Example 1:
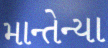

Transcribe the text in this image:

માન્તેન્યા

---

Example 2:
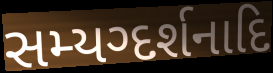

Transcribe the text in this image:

સમ્યગ્દર્શનાદિ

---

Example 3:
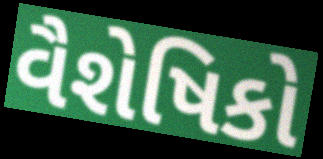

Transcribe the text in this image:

વૈશેષિકો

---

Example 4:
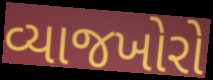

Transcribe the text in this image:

વ્યાજખોરો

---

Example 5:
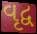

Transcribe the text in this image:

વૃદ્વ